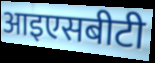
आइएसबीटी